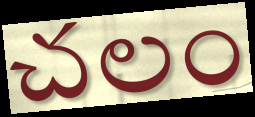
చలం